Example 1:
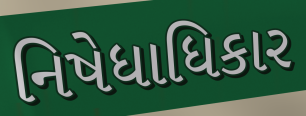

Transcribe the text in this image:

નિષેધાધિકાર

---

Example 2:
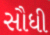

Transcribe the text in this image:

સૌધી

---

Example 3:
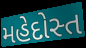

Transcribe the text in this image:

મહેદોસ્ત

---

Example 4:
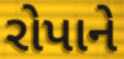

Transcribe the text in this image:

રોપાને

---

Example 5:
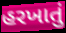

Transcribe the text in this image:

હરખાતું